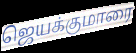
ஜெயக்குமாரை